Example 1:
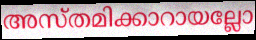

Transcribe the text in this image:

അസ്തമിക്കാറായല്ലോ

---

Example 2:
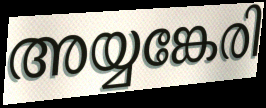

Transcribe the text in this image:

അയ്യങ്കേരി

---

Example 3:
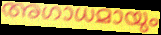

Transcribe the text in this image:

അഗാധമായും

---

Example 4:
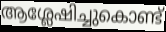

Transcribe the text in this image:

ആശ്ലേഷിച്ചുകൊണ്ട്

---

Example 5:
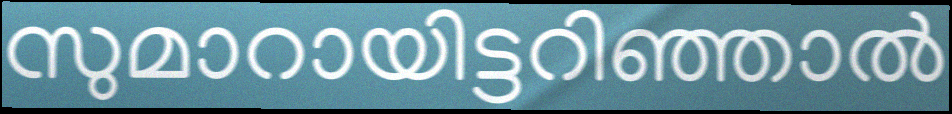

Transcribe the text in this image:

സുമാറായിട്ടറിഞ്ഞാൽ